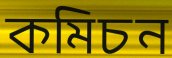
কমিচন